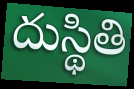
దుస్థితి